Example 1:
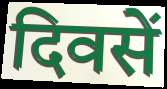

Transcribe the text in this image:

दिवसें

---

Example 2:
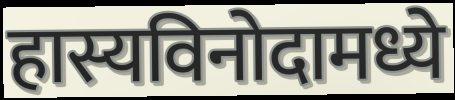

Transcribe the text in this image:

हास्यविनोदामध्ये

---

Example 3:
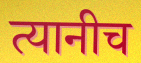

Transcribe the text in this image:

त्यानीच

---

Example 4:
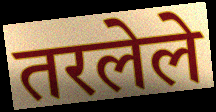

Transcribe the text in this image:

तरलेले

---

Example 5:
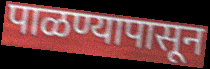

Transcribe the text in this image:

पाळण्यापासून